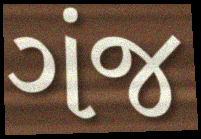
ગંજ